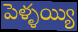
పెళ్ళయ్యి